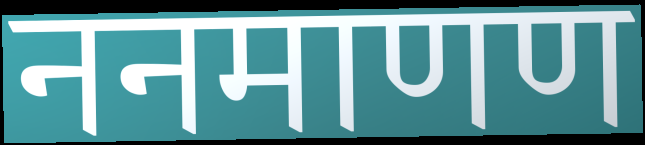
ननमाणण